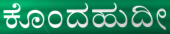
ಕೊಂದಹುದೀ